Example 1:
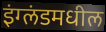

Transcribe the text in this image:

इंग्लंडमधील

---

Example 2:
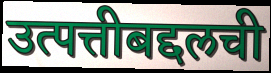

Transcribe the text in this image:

उत्पत्तीबद्दलची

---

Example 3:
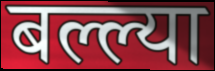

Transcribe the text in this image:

बल्ल्या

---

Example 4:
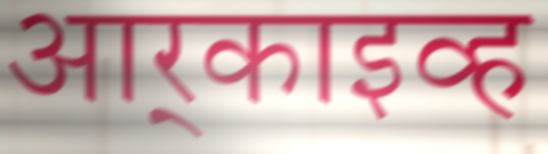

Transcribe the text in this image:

आर्काइव्ह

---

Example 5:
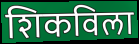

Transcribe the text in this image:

शिकविला